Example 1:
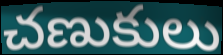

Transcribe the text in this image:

చణుకులు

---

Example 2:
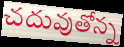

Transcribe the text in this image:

చదువుతోన్న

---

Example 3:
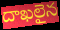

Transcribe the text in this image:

దాఖలైన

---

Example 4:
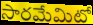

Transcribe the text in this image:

సారమేమిటో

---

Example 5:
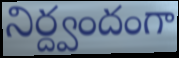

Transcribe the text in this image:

నిర్ద్వందంగా